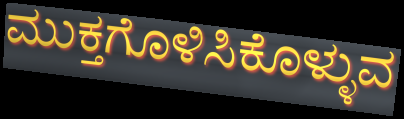
ಮುಕ್ತಗೊಳಿಸಿಕೊಳ್ಳುವ